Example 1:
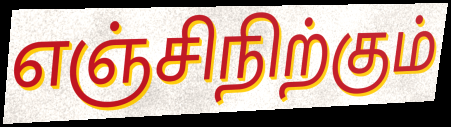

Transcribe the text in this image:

எஞ்சிநிற்கும்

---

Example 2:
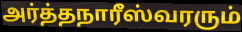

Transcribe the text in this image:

அர்த்தநாரீஸ்வரரும்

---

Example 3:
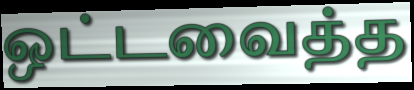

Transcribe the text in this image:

ஒட்டவைத்த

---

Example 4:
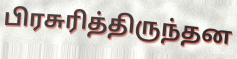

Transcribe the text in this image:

பிரசுரித்திருந்தன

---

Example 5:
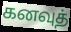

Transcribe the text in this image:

கனவுத்